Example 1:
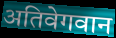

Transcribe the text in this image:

अतिवेगवान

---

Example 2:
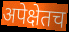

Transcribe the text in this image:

अपेक्षेतच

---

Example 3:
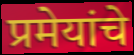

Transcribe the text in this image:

प्रमेयांचे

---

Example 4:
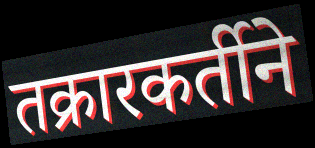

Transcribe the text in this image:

तक्रारकर्तीने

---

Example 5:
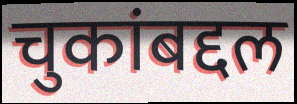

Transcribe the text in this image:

चुकांबद्दल